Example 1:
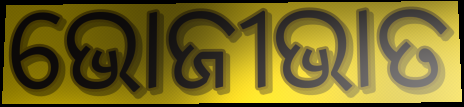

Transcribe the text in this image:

ଭୋଜୀଭାତ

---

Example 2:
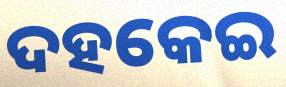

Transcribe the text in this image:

ଦହକେଇ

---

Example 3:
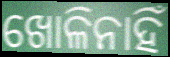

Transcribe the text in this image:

ଖୋଳିନାହିଁ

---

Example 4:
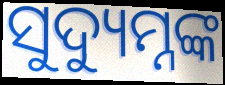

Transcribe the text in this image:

ସୁଦ୍ୟୁମ୍ନଙ୍କ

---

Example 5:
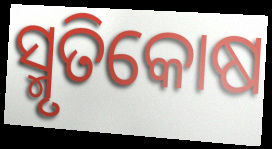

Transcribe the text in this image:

ସ୍ମୃତିକୋଷ